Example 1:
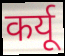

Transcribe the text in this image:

कर्यू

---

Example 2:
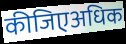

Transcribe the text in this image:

कीजिएअधिक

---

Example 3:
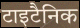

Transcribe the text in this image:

टाइटैनिक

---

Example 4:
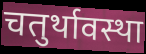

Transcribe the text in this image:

चतुर्थावस्था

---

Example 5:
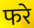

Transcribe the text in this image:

फरे